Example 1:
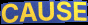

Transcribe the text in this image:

CAUSE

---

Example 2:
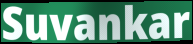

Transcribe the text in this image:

Suvankar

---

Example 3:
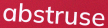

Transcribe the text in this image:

abstruse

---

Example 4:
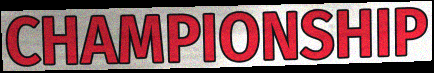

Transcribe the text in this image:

CHAMPIONSHIP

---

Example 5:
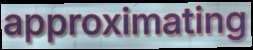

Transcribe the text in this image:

approximating